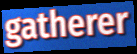
gatherer